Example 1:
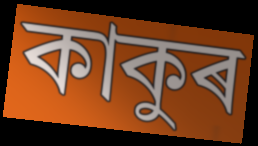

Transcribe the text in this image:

কাকুৰ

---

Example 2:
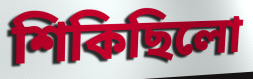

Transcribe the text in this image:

শিকিছিলো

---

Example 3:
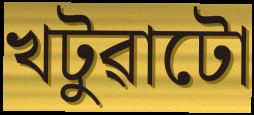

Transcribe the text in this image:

খটুৱাটো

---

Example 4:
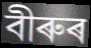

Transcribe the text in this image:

বীৰুৰ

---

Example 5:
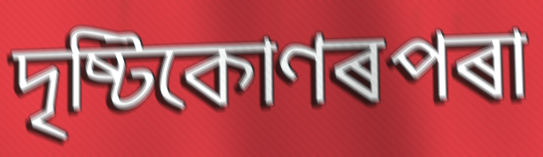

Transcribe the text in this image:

দৃষ্টিকোণৰপৰা